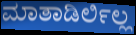
ಮಾತಾಡಿರ್ಲಿಲ್ಲ